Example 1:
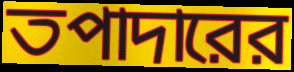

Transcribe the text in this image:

তপাদারের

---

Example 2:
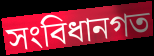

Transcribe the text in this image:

সংবিধানগত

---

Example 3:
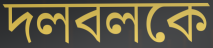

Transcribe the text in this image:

দলবলকে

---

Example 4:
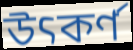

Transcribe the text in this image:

উৎকর্ণ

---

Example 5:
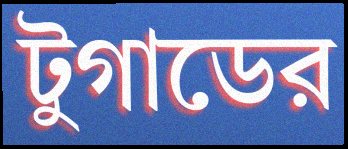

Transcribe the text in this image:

টুগাডের